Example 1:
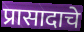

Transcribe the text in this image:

प्रासादाचे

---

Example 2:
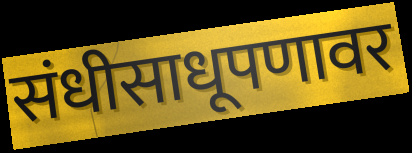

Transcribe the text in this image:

संधीसाधूपणावर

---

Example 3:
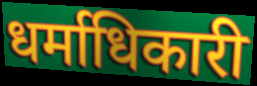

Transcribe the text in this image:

धर्माधिकारी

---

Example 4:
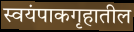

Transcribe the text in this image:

स्वयंपाकगृहातील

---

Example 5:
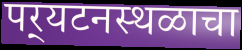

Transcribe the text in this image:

पर्यटनस्थळाचा